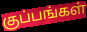
குப்பங்கள்